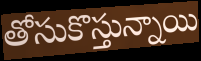
తోసుకొస్తున్నాయి